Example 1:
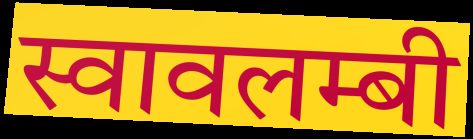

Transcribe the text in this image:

स्वावलम्बी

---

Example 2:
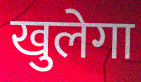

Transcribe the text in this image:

खुलेगा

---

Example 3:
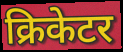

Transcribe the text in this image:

क्रिकेटर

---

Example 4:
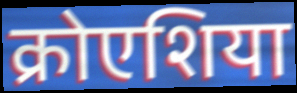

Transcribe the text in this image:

क्रोएशिया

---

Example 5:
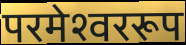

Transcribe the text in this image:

परमेश्वररूप